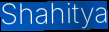
Shahitya